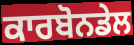
ਕਾਰਬੋਨਡੇਲ